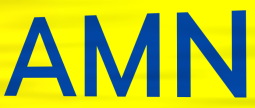
AMN